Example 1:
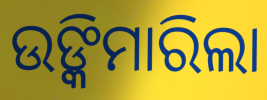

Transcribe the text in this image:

ଉଙ୍କିମାରିଲା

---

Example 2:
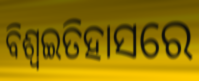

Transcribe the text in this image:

ବିଶ୍ଵଇତିହାସରେ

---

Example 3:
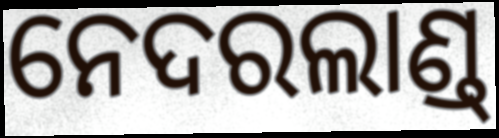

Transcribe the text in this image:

ନେଦରଲାଣ୍ଡ୍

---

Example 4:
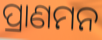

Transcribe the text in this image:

ପ୍ରାଣମନ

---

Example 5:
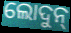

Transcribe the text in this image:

ଲୋଦୁନ୍